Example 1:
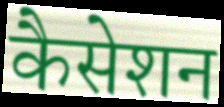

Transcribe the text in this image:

कैसेशन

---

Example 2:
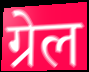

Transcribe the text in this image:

ग्रेल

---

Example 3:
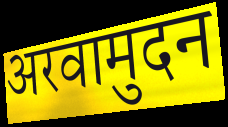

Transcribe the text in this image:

अरवामुदन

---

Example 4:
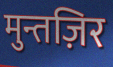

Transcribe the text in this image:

मुन्तज़िर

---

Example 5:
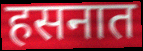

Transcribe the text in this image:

हसनात